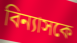
বিন্যাসকে